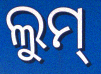
ଲୁମ୍